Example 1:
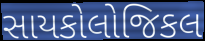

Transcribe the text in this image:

સાયકોલોજિકલ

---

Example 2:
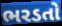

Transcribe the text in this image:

ભરડતો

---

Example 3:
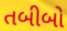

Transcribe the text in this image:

તબીબો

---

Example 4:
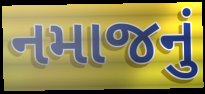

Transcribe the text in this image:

નમાજનું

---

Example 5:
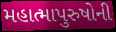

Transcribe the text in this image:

મહાત્માપુરુષોની